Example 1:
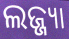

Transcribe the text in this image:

ଲଜ୍ଜ୍ୟା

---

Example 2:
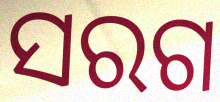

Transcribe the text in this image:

ସରଗ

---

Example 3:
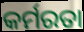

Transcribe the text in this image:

କର୍ମରତା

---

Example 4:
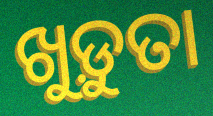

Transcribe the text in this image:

ଖୁଡ଼ୁତା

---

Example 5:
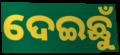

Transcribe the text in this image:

ଦେଇଛୁଁ